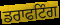
ਡਰਾਫਟਿੰਗ